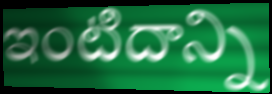
ఇంటిదాన్ని